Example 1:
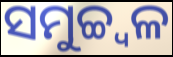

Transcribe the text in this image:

ସମୁଚ୍ଚ୍ୱଳ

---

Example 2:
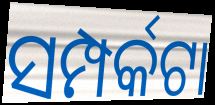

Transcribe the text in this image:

ସମ୍ପର୍କଟା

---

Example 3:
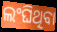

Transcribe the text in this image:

ଲଂଘିଥିବା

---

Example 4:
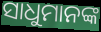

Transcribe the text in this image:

ସାଧୁମାନଙ୍କ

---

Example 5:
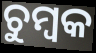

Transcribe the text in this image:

ଚୁମ୍ବକ